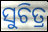
ସୁଚିତ୍ର